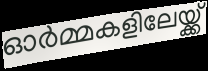
ഓർമ്മകളിലേയ്ക്ക്